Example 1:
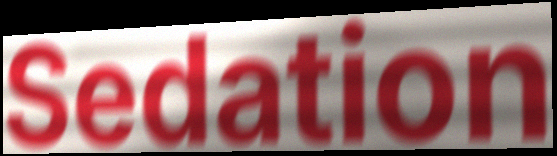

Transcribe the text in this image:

Sedation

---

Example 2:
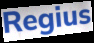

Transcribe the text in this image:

Regius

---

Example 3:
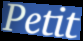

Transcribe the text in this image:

Petit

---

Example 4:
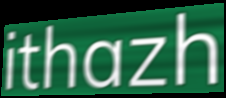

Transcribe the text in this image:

ithazh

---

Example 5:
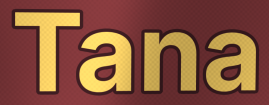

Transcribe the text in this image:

Tana